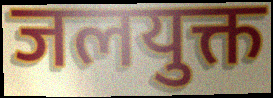
जलयुक्त